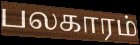
பலகாரம்